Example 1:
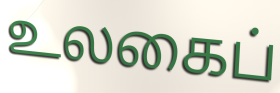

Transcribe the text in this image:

உலகைப்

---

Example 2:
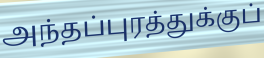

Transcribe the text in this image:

அந்தப்புரத்துக்குப்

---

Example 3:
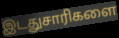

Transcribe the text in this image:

இடதுசாரிகளை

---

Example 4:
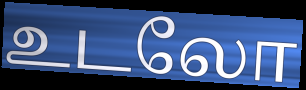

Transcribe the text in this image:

உடலோ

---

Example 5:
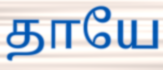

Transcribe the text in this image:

தாயே